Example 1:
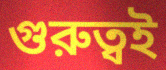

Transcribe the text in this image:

গুরুত্বই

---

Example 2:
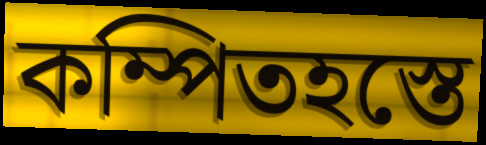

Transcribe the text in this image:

কম্পিতহস্তে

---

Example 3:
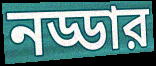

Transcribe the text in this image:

নড্ডার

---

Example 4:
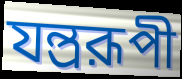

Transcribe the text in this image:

যন্ত্ররূপী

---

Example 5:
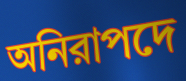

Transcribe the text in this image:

অনিরাপদে